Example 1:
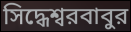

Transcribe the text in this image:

সিদ্ধেশ্বরবাবুর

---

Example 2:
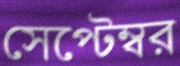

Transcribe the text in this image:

সেপ্টেম্বর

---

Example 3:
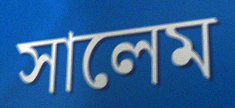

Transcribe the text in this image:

সালেম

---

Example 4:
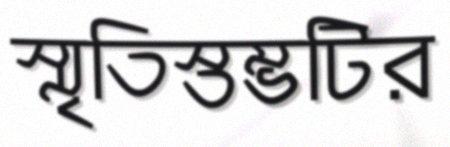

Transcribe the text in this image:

স্মৃতিস্তম্ভটির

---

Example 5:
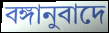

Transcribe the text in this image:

বঙ্গানুবাদে